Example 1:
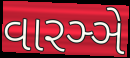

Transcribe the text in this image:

વારઞ્ઞે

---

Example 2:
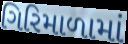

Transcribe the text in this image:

ગિરિમાળામાં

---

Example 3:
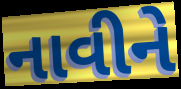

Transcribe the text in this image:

નાવીને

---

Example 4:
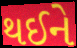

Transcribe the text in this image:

થઈને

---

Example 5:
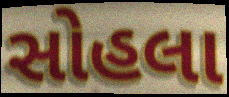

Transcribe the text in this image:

સોહલા